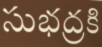
సుభద్రకి